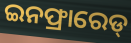
ଇନଫ୍ରାରେଡ୍